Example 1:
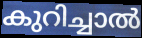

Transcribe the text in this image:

കുറിച്ചാൽ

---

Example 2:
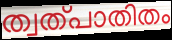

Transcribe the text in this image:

ത്വത്പാതിതം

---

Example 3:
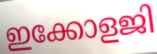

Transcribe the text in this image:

ഇക്കോളജി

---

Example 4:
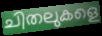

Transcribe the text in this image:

ചിതലുകളെ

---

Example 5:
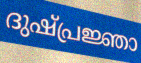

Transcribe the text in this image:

ദുഷ്പ്രജ്ഞാ